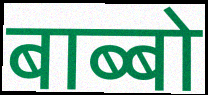
बाब्बो